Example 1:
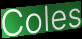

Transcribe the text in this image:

Coles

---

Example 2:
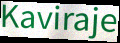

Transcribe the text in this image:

Kaviraje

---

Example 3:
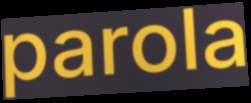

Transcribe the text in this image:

parola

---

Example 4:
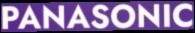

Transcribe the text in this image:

PANASONIC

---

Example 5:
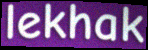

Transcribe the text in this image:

lekhak